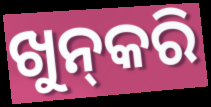
ଖୁନ୍‍କରି